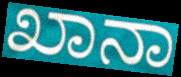
ಖಾನಾ